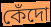
কেঁদো